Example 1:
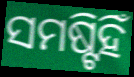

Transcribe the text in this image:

ସମଷ୍ଟିହିଁ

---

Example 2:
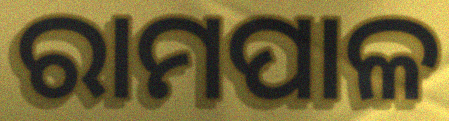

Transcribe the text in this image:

ରାମପାଳ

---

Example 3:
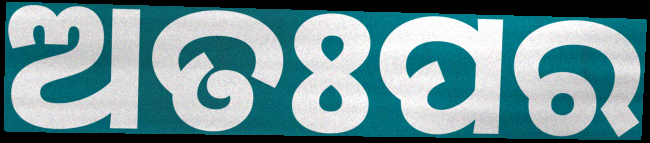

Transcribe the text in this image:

ଅତଃପର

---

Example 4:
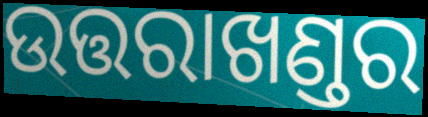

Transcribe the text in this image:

ଉତ୍ତରାଖଣ୍ଡର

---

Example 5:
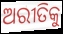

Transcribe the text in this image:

ଅରୀତିକୁ